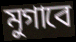
মুগাবে